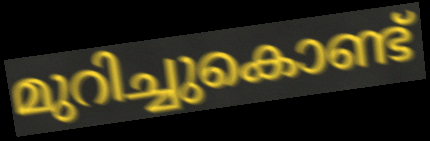
മുറിച്ചുകൊണ്ട്